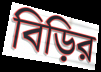
বিড়ির